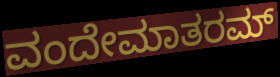
ವಂದೇಮಾತರಮ್